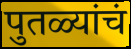
पुतळ्यांचं